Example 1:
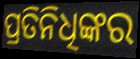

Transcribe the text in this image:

ପ୍ରତିନିଧିଙ୍କର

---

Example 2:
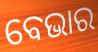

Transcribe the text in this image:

ବେଭାର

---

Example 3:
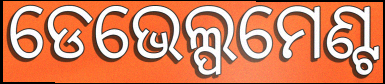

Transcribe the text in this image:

ଡେଭେଲ୍ପମେଣ୍ଟ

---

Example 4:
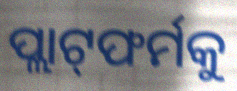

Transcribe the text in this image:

ପ୍ଲାଟ୍‌ଫର୍ମକୁ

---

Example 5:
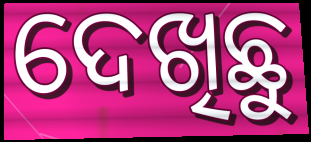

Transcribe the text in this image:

ଦେଖିଛୁ